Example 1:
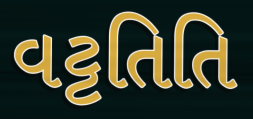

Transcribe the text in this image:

વટ્ટતિતિ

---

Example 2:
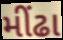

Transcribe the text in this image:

મીંઢા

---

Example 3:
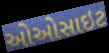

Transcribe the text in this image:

ઓઓસાઇટ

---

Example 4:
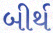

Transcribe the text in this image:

બીર્થ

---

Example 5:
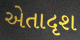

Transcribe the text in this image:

એતાદૃશ